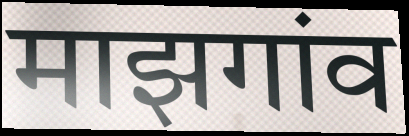
माझगांव